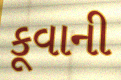
કૂવાની